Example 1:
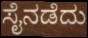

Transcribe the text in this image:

ಸೈನಡೆದು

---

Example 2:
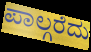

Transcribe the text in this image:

ಪಾಲ್ಗರೆದು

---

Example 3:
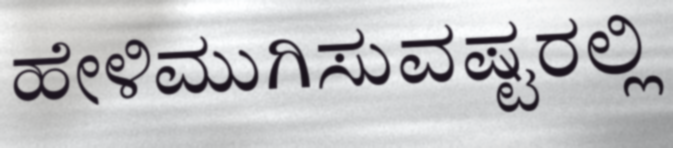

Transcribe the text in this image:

ಹೇಳಿಮುಗಿಸುವಷ್ಟರಲ್ಲಿ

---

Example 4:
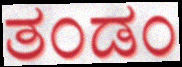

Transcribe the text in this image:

ತಂಡಂ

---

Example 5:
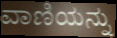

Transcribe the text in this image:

ವಾಣಿಯನ್ನು